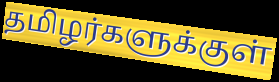
தமிழர்களுக்குள்